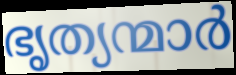
ഭൃത്യന്മാർ